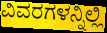
ವಿವರಗಳನ್ನಿಲ್ಲಿ